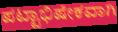
ಪಟ್ಟಾಭಿಷೇಕವಾಗಿ